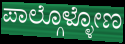
ಪಾಲ್ಗೊಳ್ಳೋಣ